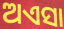
ଅଏସା